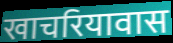
खाचरियावास